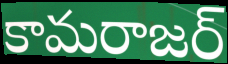
కామరాజర్